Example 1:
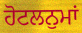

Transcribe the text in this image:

ਹੋਟਲਨੁਮਾਂ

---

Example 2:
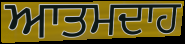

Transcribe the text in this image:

ਆਤਮਦਾਹ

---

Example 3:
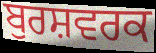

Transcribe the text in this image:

ਬੁਰਸ਼ਵਰਕ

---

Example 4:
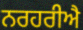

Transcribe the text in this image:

ਨਰਹਰੀਐ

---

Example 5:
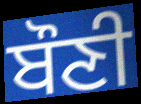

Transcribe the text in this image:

ਬੌਣੀ